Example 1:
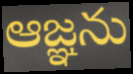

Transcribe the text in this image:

ఆజ్ఞను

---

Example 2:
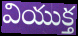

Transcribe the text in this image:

వియుక్త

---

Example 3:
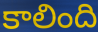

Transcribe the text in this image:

కాలింది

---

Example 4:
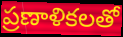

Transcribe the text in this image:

ప్రణాళికలతో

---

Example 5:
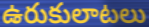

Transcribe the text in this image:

ఉరుకులాటలు